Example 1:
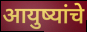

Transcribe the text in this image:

आयुष्यांचे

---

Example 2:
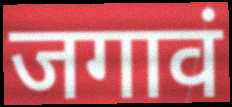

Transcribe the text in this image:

जगावं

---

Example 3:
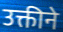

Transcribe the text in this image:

उक्तीने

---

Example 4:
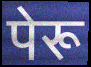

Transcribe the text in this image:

पेरू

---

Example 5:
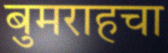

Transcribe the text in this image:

बुमराहचा